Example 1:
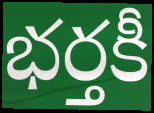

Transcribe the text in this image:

భర్తకీ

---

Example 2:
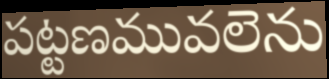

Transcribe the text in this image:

పట్టణమువలెను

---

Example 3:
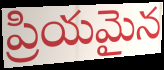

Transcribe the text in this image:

ప్రియమైన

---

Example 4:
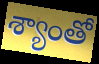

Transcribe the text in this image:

శ్యాంతో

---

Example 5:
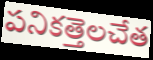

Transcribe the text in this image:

పనికత్తెలచేత